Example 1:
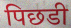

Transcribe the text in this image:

पिछडी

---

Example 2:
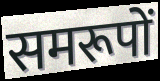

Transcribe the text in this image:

समरूपों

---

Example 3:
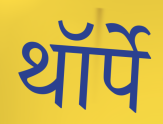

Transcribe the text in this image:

थॉर्पे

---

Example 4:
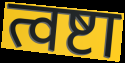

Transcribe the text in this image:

त्वष्टा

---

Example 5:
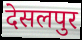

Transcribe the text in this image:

देसलपुर